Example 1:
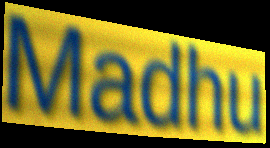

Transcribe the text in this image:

Madhu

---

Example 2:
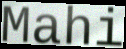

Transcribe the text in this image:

Mahi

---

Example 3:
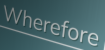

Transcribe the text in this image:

Wherefore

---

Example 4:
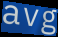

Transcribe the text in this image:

avg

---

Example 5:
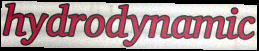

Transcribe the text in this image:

hydrodynamic